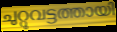
ചുറ്റുവട്ടത്തായി